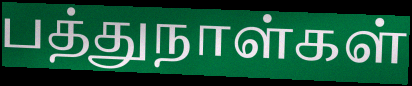
பத்துநாள்கள்